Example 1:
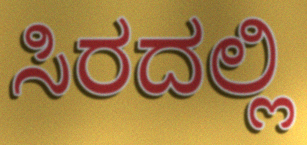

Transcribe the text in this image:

ಸಿರದಲ್ಲಿ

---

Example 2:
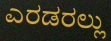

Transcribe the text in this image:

ಎರಡರಲ್ಲು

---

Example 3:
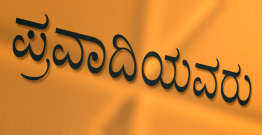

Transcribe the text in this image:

ಪ್ರವಾದಿಯವರು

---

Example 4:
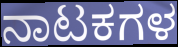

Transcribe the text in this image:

ನಾಟಕಗಳ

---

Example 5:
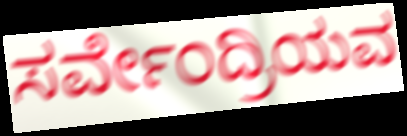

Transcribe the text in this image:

ಸರ್ವೇಂದ್ರಿಯವ